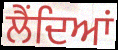
ਲੈਂਦਿਆਂ